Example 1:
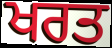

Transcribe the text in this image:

ਖਰਤ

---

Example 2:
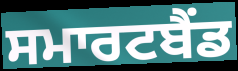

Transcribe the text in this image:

ਸਮਾਰਟਬੈਂਡ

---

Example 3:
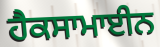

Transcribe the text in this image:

ਹੈਕਸਾਮਾਈਨ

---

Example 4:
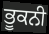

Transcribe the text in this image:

ਭੂਕਨੀ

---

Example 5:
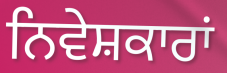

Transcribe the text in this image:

ਨਿਵੇਸ਼ਕਾਰਾਂ